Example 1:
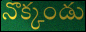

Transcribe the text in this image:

నొక్కండు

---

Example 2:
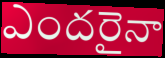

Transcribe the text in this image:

ఎందరైనా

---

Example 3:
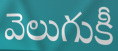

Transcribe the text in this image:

వెలుగుకీ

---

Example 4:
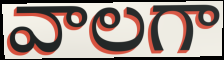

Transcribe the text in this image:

వాలగా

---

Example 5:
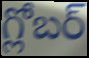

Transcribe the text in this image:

గ్లోబర్